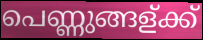
പെണ്ണുങ്ങള്ക്ക്